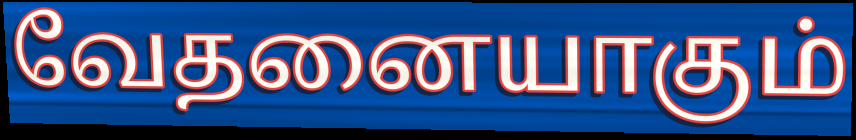
வேதனையாகும்